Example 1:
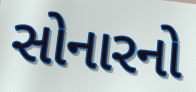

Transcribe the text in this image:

સોનારનો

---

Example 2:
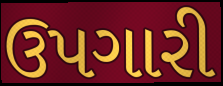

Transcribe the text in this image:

ઉપગારી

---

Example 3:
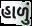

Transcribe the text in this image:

હાળું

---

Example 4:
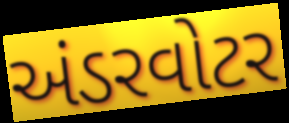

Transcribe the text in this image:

અંડરવોટર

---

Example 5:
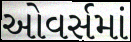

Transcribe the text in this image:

ઓવર્સમાં